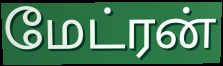
மேட்ரன்